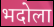
भदोला